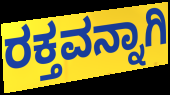
ರಕ್ತವನ್ನಾಗಿ